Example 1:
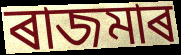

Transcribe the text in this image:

ৰাজমাৰ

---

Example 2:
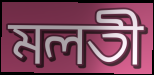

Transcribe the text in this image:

মলতী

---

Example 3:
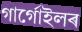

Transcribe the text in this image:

গাৰ্গোইলৰ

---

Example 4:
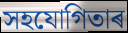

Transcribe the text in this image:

সহযোগিতাৰ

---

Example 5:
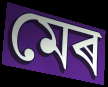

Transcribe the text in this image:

মেৰ